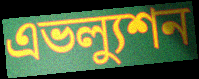
এভল্যুশন